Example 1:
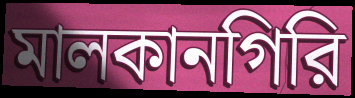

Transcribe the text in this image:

মালকানগিরি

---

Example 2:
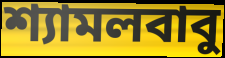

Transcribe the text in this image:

শ্যামলবাবু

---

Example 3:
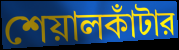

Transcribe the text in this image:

শেয়ালকাঁটার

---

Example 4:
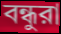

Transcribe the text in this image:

বন্ধুরা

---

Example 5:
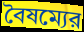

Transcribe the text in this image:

বৈষম্যের